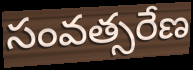
సంవత్సరేణ